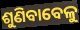
ଶୁଣିବାବେଳୁ